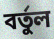
বর্তুল